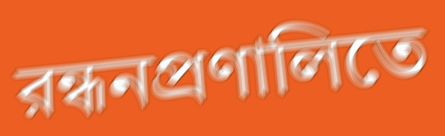
রন্ধনপ্রণালিতে